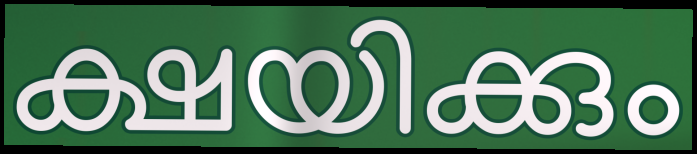
ക്ഷയിക്കും